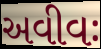
અવીવઃ